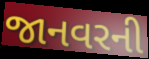
જાનવરની